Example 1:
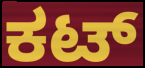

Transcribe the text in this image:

ಕಟ್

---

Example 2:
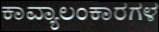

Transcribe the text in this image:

ಕಾವ್ಯಾಲಂಕಾರಗಳ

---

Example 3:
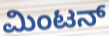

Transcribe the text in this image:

ಮಿಂಟನ್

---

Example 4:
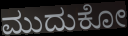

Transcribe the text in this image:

ಮುದುಕೋ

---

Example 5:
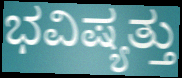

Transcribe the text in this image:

ಭವಿಷ್ಯತ್ತು